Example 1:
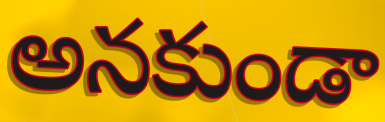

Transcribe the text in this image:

అనకుండా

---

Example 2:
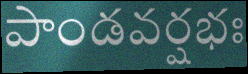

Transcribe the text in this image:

పాండవర్షభః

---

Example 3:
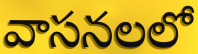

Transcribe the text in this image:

వాసనలలో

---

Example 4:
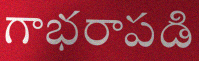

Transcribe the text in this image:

గాభరాపడి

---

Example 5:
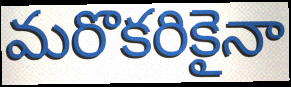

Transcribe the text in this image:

మరొకరికైనా